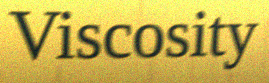
Viscosity